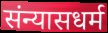
संन्यासधर्म